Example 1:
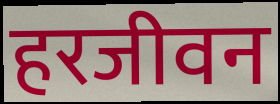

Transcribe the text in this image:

हरजीवन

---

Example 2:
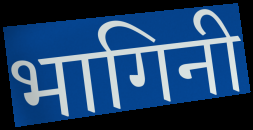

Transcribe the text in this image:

भागिनी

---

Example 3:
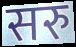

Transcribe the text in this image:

सरु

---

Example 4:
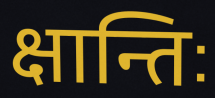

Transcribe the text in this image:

क्षान्तिः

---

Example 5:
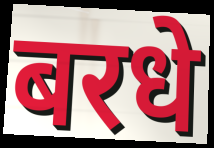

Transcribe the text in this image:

बरधे